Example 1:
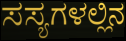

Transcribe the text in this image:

ಸಸ್ಯಗಳಲ್ಲಿನ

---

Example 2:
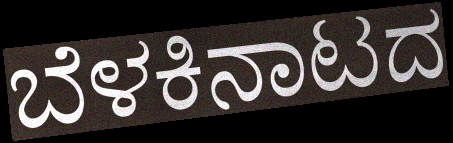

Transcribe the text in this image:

ಬೆಳಕಿನಾಟದ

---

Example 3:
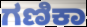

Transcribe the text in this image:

ಗಣಿಕಾ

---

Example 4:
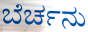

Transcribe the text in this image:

ಬೆರ್ಚನು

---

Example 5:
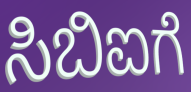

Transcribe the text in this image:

ಸಿಬಿಐಗೆ